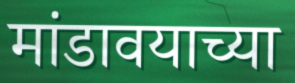
मांडावयाच्या